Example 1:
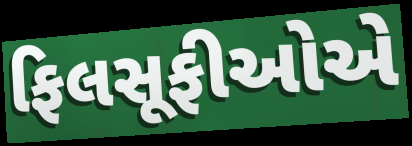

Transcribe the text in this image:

ફિલસૂફીઓએ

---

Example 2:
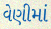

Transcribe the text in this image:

વેણીમાં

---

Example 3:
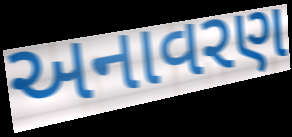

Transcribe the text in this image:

અનાવરણ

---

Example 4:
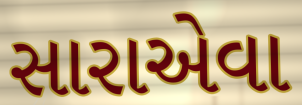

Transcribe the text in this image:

સારાએવા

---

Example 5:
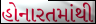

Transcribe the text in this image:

હોનારતમાંથી